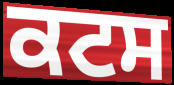
ਕਟਸ